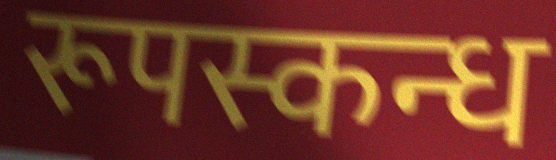
रूपस्कन्ध